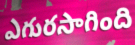
ఎగురసాగింది